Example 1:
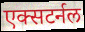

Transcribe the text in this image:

एक्सटर्नल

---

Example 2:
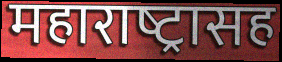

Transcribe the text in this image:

महाराष्ट्रासह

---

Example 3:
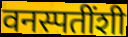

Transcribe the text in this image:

वनस्पतींशी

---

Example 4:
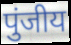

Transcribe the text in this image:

पुंजीय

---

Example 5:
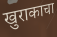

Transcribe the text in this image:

खुराकाचा